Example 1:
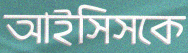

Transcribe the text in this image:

আইসিসকে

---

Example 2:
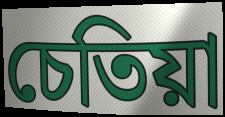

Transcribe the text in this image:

চেতিয়া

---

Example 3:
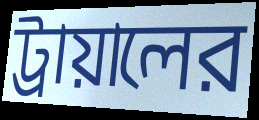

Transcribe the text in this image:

ট্রায়ালের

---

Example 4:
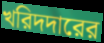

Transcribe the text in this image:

খরিদদারের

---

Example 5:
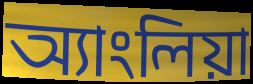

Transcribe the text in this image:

অ্যাংলিয়া